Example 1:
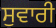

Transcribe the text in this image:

ਸੁਵਾਰੀ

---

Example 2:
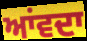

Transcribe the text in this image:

ਆਂਵਦਾ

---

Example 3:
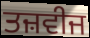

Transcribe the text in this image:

ਤਜ਼ਵੀਜ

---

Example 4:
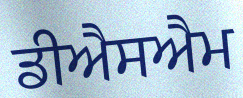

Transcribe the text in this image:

ਡੀਐਸਐਮ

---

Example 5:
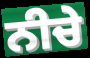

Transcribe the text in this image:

ਨੀਚੇ